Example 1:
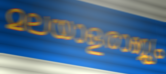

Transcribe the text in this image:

മലയാളരാജ്യം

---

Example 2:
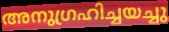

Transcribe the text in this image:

അനുഗ്രഹിച്ചയച്ചു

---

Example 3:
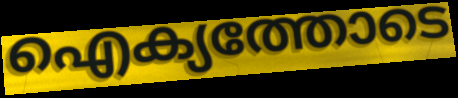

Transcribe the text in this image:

ഐക്യത്തോടെ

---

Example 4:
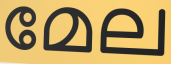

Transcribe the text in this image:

മേല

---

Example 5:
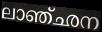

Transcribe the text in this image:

ലാഞ്ഛന